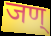
जण्